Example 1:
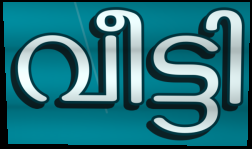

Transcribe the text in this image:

വീട്ടി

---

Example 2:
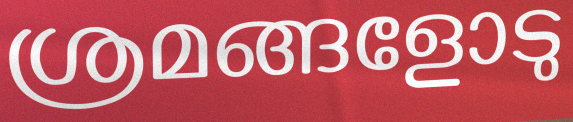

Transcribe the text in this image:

ശ്രമങ്ങളോടു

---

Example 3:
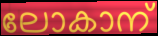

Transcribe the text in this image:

ലോകാന്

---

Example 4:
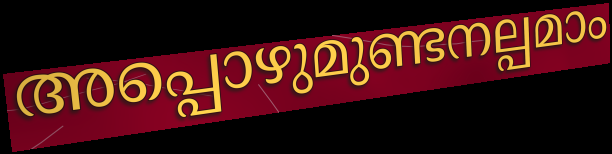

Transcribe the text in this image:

അപ്പൊഴുമുണ്ടനല്പമാം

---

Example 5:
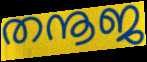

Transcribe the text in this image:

തനൂജ